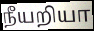
நீயறியா